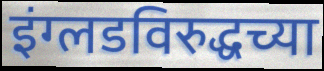
इंग्लडविरुद्धच्या